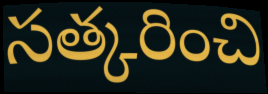
సత్కరించి